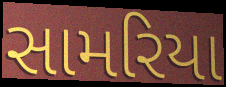
સામરિયા